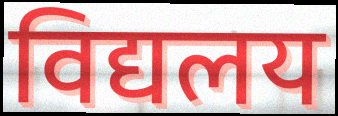
विद्यलय